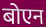
बोएन